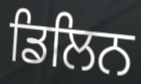
ਡਿਲਿਨ